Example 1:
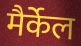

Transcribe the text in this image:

मैर्केल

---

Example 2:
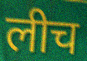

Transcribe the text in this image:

लीच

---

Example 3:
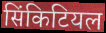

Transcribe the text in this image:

सिंकिटियल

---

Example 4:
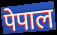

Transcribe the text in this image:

पेपाल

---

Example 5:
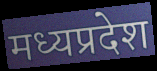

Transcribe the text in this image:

मध्यप्रदेश